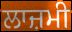
ਲਾਜ਼ਮੀ